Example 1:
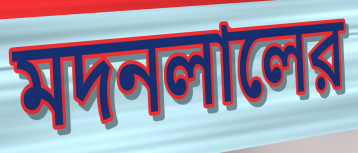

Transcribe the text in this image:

মদনলালের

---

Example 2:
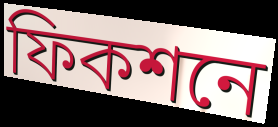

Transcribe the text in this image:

ফিকশনে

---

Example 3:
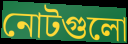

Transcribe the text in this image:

নোটগুলো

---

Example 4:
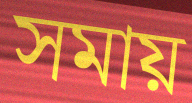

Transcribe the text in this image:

সমায়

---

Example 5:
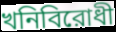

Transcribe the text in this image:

খনিবিরোধী